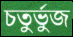
চতুর্ভুজ